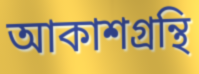
আকাশগ্রন্থি